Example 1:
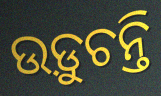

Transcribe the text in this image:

ଉଡ଼ୁଚନ୍ତି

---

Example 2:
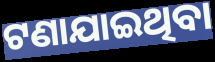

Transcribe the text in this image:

ଟଣାଯାଇଥିବା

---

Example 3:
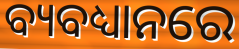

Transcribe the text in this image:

ବ୍ୟବଧ୍ୟାନରେ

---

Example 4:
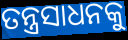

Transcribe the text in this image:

ତନ୍ତ୍ରସାଧନକୁ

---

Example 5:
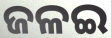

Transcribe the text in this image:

ଜଳଇ